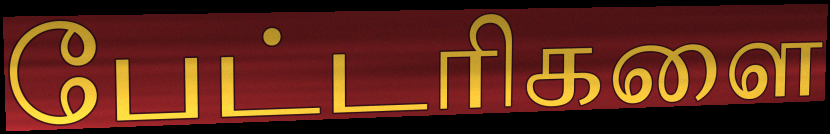
பேட்டரிகளை